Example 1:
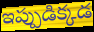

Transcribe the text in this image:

ఇప్పుడిక్కడ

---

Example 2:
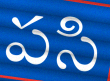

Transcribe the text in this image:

పసి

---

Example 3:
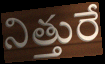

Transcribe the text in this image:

నిత్తురే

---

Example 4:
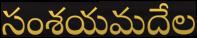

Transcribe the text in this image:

సంశయమదేల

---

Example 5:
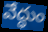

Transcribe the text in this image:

వేద్ధుం